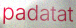
padatat